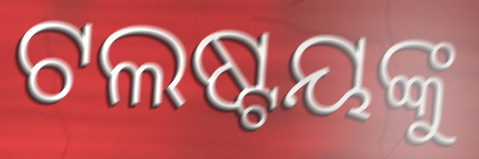
ଟଲଷ୍ଟୟଙ୍କୁ